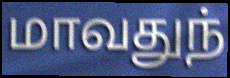
மாவதுந்